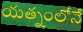
యత్నంలోనే